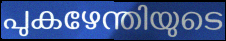
പുകഴേന്തിയുടെ